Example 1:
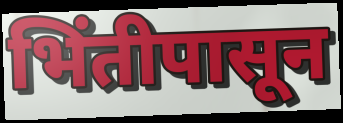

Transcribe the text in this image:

भिंतीपासून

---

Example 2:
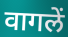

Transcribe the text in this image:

वागलें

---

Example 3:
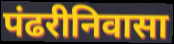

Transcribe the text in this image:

पंढरीनिवासा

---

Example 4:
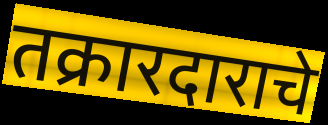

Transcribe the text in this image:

तक्रारदाराचे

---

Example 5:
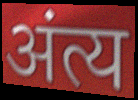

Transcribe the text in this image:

अंत्य